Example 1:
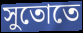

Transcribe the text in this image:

সুতোতে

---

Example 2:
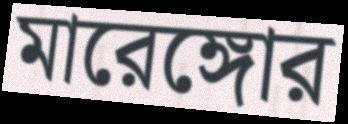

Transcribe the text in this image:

মারেঙ্গোর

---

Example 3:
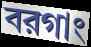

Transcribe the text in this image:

বরগাং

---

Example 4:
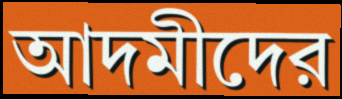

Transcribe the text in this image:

আদমীদের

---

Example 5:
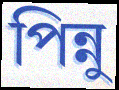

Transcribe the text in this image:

পিন্নু